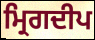
ਮ੍ਰਿਗਦੀਪ